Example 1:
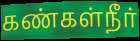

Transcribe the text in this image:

கண்கள்நீர்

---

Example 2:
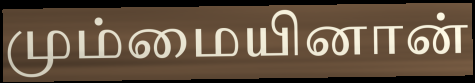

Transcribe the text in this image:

மும்மையினான்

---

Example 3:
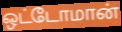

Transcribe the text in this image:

ஒட்டோமான்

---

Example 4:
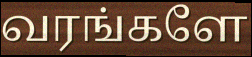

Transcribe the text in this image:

வரங்களே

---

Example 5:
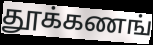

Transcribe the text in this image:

தூக்கணங்